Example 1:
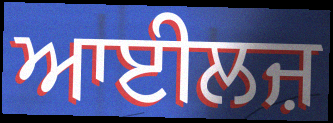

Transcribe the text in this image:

ਆਈਲਜ਼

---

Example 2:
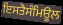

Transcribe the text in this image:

ਇਸਤੈਸੰਮਿਊਲ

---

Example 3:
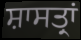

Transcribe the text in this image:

ਸ਼ਾਸਤ੍ਰਾਂ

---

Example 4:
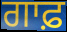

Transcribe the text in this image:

ਗਾਫ਼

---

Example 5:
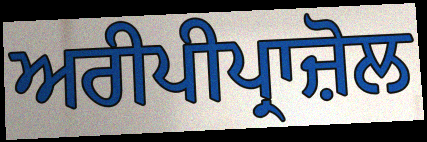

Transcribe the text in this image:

ਅਰੀਪੀਪ੍ਰਾਜ਼ੋਲ